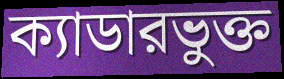
ক্যাডারভুক্ত